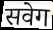
सवेग